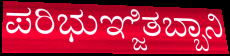
ಪರಿಭುಞ್ಜಿತಬ್ಬಾನಿ